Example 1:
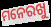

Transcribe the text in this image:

ମନେରଖୁ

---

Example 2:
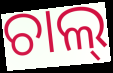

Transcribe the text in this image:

ଚାଲ୍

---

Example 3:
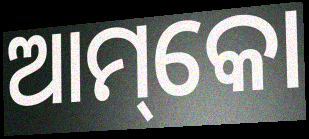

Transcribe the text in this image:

ଆମ୍‌କୋ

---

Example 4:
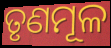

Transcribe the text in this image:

ତୃଣମୂଳ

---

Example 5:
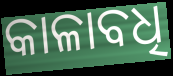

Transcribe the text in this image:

କାଳାବଧି